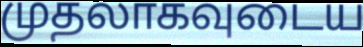
முதலாகவுடைய